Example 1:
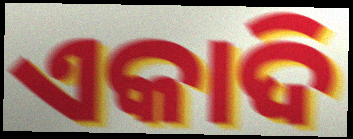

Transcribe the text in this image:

ଏକାଦି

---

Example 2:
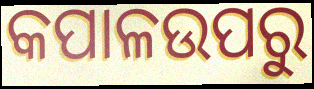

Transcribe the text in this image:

କପାଳଉପରୁ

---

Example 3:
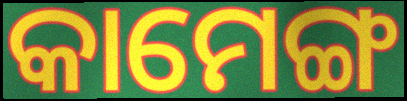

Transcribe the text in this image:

କାମେଙ୍ଗ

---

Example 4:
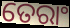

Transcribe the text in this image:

ତେରାଂ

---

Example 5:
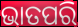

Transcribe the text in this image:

ଭାତପରି